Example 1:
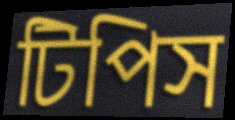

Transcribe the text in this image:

টিপিস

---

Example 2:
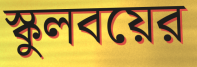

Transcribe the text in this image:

স্কুলবয়ের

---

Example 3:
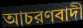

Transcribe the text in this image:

আচরণবাদী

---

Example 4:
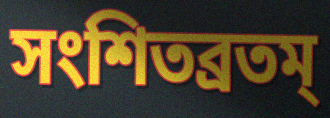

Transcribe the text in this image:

সংশিতব্রতম্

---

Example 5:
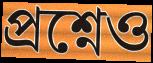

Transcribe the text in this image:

প্রশ্নেও